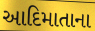
આદિમાતાના